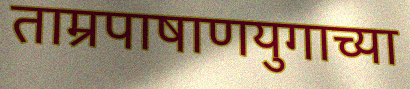
ताम्रपाषाणयुगाच्या